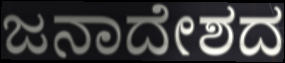
ಜನಾದೇಶದ